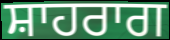
ਸ਼ਾਹਰਾਗ